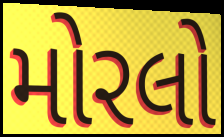
મોરલો